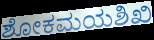
ಶೋಕಮಯಶಿಖಿ